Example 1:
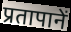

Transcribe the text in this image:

प्रतापानें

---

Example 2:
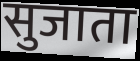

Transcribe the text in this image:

सुजाता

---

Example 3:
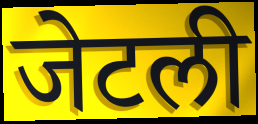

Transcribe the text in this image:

जेटली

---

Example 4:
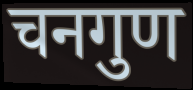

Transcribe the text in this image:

चनगुण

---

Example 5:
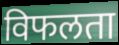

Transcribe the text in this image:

विफलता